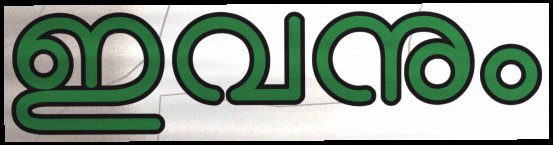
ഇവനും